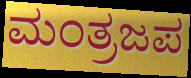
ಮಂತ್ರಜಪ